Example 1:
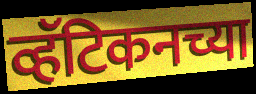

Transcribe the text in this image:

व्हॅटिकनच्या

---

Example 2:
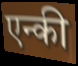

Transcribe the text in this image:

एन्की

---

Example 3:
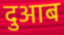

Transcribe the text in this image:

दुआब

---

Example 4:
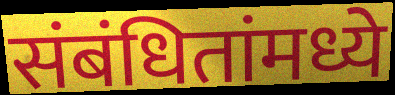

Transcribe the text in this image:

संबंधितांमध्ये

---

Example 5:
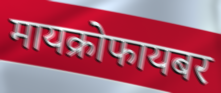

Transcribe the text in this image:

मायक्रोफायबर